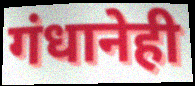
गंधानेही